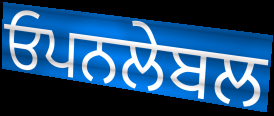
ਓਪਨਲੇਬਲ